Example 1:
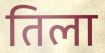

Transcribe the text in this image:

तिला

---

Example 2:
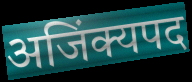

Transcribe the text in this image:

अजिंक्यपद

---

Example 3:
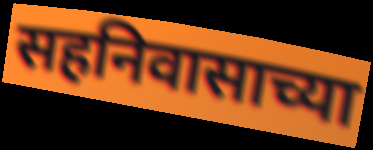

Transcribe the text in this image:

सहनिवासाच्या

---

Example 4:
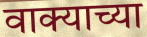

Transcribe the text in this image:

वाक्याच्या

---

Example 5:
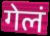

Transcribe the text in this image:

गेलं